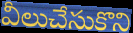
వీలుచేసుకొని